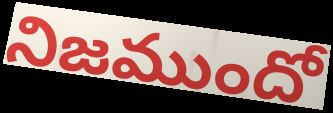
నిజముందో